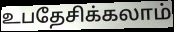
உபதேசிக்கலாம்